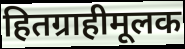
हितग्राहीमूलक